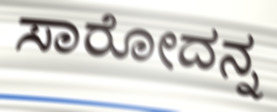
ಸಾರೋದನ್ನ